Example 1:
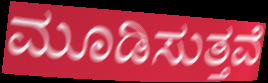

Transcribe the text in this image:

ಮೂಡಿಸುತ್ತವೆ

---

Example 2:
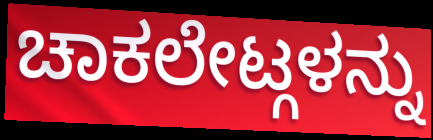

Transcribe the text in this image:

ಚಾಕಲೇಟ್ಗಳನ್ನು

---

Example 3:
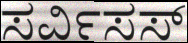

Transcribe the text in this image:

ಸರ್ವಿಸಸ್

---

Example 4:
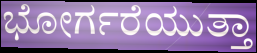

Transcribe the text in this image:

ಭೋರ್ಗರೆಯುತ್ತಾ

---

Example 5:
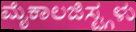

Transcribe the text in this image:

ಮೈಕಾಲಜಿಸ್ಟ್ಗಳು